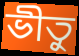
ভীতু